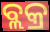
ବ୍ଲକ୍ର